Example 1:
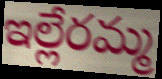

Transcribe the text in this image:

ఇల్లేరమ్మ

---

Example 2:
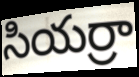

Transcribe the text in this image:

సియర్రా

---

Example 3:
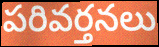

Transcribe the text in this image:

పరివర్తనలు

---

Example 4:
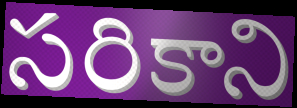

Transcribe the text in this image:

సరికాని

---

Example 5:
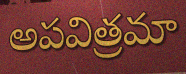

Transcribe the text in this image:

అపవిత్రమా